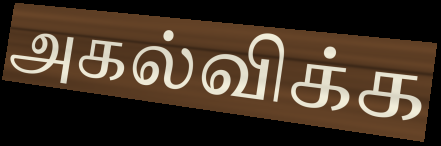
அகல்விக்க